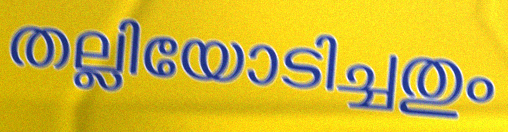
തല്ലിയോടിച്ചതും